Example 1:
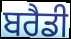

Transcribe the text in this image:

ਬਰੈਡੀ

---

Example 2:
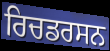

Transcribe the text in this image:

ਰਿਚਡਰਸਨ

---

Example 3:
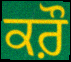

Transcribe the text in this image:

ਕਰ਼ੌ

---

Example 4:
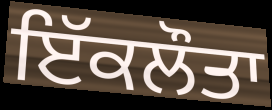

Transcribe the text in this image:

ਇੱਕਲੌਤਾ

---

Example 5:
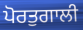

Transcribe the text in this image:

ਪੋਰਤੁਗਾਲੀ